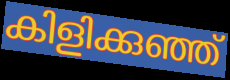
കിളിക്കുഞ്ഞ്